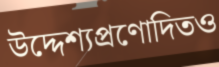
উদ্দেশ্যপ্রণোদিতও